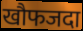
खौफजदा